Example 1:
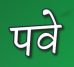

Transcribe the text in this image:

पवे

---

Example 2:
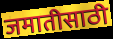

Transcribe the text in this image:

जमातीसाठी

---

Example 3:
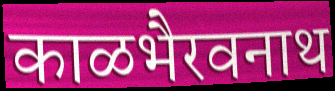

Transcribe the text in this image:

काळभैरवनाथ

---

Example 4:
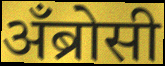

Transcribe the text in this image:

अँब्रोसी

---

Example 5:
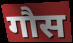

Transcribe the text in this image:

गौस